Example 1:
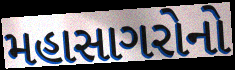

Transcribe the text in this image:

મહાસાગરોનો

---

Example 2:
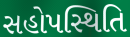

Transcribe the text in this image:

સહોપસ્થિતિ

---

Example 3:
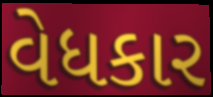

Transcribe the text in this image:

વેધકાર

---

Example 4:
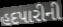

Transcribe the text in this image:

હદપારીની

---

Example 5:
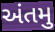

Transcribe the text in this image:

અંતમુ